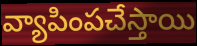
వ్యాపింపచేస్తాయి